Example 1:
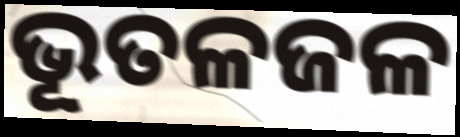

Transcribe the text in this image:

ଭୂତଳଜଳ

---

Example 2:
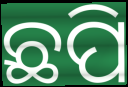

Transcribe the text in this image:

ଛପି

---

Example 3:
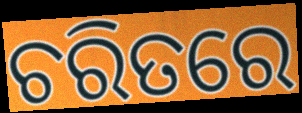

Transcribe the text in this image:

ଚରିତରେ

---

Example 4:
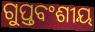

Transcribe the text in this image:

ଗୁପ୍ତବଂଶୀୟ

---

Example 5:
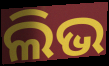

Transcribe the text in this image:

ଲିଭ